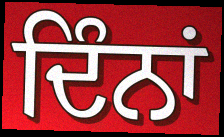
ਦਿੰਨਾਂ